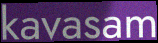
kavasam